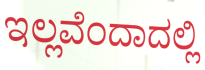
ಇಲ್ಲವೆಂದಾದಲ್ಲಿ